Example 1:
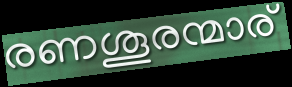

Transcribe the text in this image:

രണശൂരന്മാര്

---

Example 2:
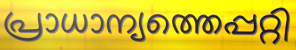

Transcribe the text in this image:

പ്രാധാന്യത്തെപ്പറ്റി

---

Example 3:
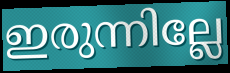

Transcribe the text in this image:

ഇരുന്നില്ലേ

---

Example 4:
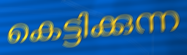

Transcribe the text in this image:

കെട്ടിക്കുന്ന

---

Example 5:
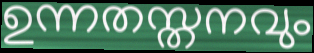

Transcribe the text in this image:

ഉന്നതസ്തനവും